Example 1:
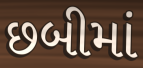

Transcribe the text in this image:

છબીમાં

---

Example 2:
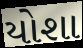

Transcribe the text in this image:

યોશા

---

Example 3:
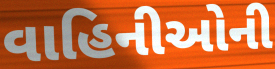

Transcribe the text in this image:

વાહિનીઓની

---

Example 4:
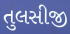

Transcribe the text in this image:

તુલસીજી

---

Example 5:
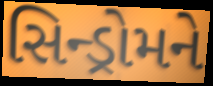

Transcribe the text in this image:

સિન્ડ્રોમને